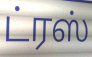
ட்ரஸ்